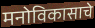
मनोविकासाचे